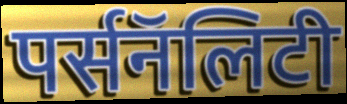
पर्सनॅलिटी